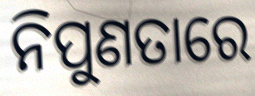
ନିପୁଣତାରେ